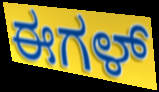
ಈಗಳ್